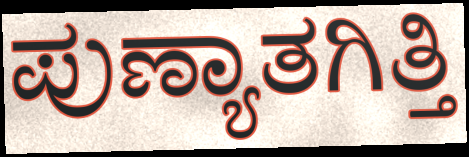
ಪುಣ್ಯಾತಗಿತ್ತಿ